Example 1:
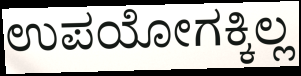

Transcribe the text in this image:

ಉಪಯೋಗಕ್ಕಿಲ್ಲ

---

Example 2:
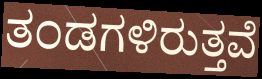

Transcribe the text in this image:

ತಂಡಗಳಿರುತ್ತವೆ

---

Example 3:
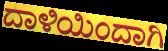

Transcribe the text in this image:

ದಾಳಿಯಿಂದಾಗಿ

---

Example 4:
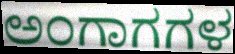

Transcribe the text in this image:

ಅಂಗಾಗಗಳ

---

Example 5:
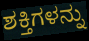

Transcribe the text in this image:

ಶಕ್ತಿಗಳನ್ನು